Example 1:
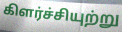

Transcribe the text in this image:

கிளர்ச்சியுற்று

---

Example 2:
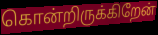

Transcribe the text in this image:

கொன்றிருக்கிறேன்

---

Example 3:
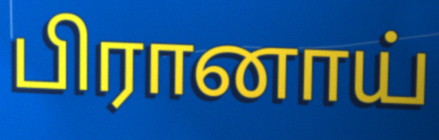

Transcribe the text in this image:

பிரானாய்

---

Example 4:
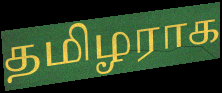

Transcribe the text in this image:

தமிழராக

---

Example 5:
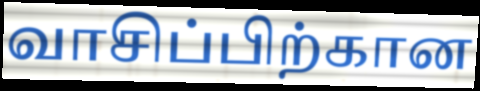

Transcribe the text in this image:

வாசிப்பிற்கான